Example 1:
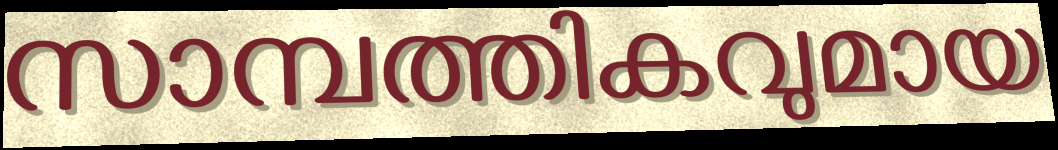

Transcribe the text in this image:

സാമ്പത്തികവുമായ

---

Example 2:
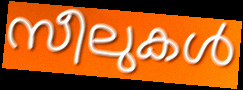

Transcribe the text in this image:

സീലുകൾ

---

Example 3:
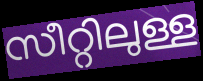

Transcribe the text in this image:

സീറ്റിലുള്ള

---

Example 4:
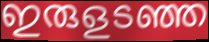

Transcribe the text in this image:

ഇരുളടഞ്ഞ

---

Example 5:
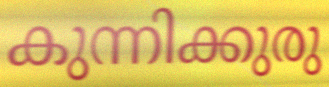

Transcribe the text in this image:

കുന്നിക്കുരു